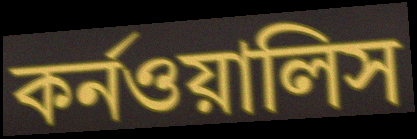
কর্নওয়ালিস